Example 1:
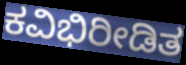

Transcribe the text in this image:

ಕವಿಭಿರೀಡಿತ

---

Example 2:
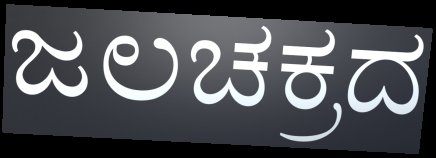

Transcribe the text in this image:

ಜಲಚಕ್ರದ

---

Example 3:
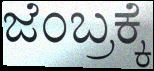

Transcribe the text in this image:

ಜೆಂಬ್ರಕ್ಕೆ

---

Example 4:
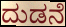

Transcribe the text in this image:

ದುಡನೆ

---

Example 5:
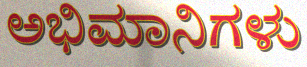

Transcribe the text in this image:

ಅಭಿಮಾನಿಗಳು